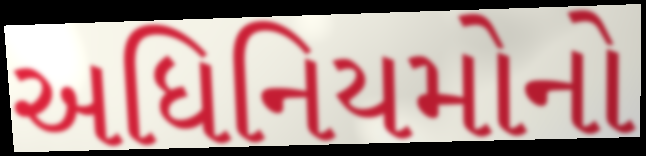
અધિનિયમોનો